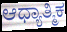
ಆಧ್ಯಾತ್ಮಿಕ